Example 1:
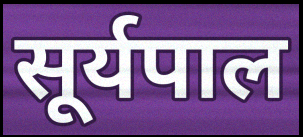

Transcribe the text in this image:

सूर्यपाल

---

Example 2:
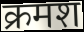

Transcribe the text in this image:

क्रमश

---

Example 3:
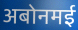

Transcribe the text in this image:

अबोनमई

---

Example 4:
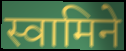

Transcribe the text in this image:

स्वामिने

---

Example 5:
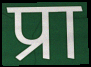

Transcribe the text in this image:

प्रा